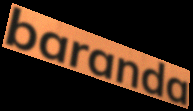
baranda